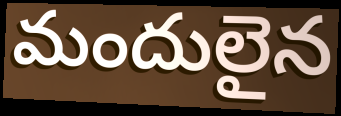
మందులైన